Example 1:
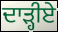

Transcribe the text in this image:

ਦਾੜ੍ਹੀਏ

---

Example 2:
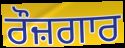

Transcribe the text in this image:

ਰੌਜ਼ਗਾਰ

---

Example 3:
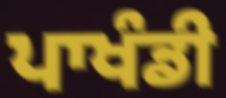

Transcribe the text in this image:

ਪਾਖੰਡੀ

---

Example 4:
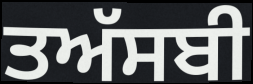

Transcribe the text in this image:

ਤਅੱਸਬੀ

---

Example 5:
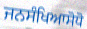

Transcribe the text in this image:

ਜਨਸੰਖਿਆਸੋਧੋ